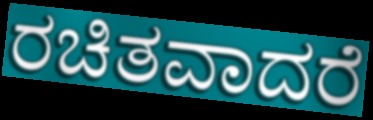
ರಚಿತವಾದರೆ